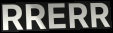
RRERR